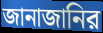
জানাজানির